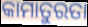
କାମାତୁରତା